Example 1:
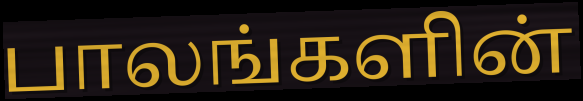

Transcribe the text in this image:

பாலங்களின்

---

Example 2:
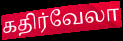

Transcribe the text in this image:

கதிர்வேலா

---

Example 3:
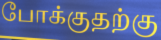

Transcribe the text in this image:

போக்குதற்கு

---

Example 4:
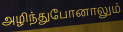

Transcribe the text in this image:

அழிந்துபோனாலும்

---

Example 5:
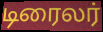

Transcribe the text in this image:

டிரைலர்